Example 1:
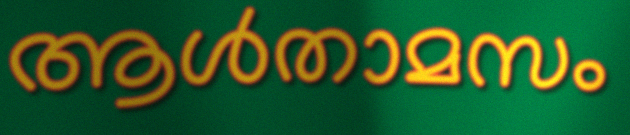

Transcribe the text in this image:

ആൾതാമസം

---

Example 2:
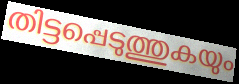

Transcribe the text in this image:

തിട്ടപ്പെടുത്തുകയും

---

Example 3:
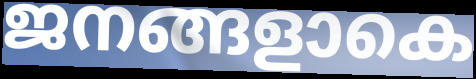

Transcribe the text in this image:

ജനങ്ങളാകെ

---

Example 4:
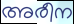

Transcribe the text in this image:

അരീന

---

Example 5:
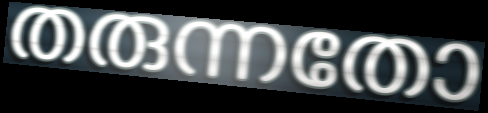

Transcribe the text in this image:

തരുന്നതോ